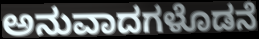
ಅನುವಾದಗಳೊಡನೆ